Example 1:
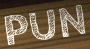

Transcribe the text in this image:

PUN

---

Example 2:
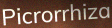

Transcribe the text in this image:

Picrorrhiza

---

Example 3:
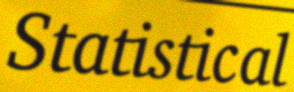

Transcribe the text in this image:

Statistical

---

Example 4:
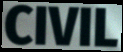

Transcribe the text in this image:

CIVIL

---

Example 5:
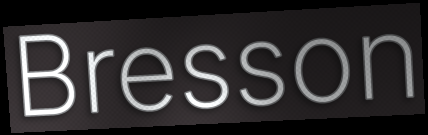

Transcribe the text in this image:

Bresson